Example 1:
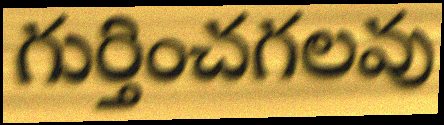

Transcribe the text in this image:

గుర్తించగలవు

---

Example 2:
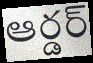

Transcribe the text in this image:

ఆర్డర్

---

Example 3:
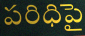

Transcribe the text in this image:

పరిధిపై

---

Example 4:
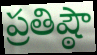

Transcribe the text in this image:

ప్రతిష్ఠౌ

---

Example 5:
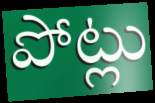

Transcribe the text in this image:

పోట్లు